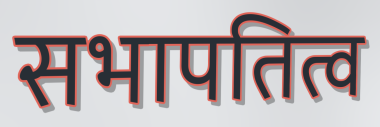
सभापतित्व